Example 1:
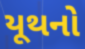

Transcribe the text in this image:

યૂથનો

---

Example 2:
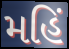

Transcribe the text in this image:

મહિં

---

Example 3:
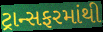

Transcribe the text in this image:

ટ્રાન્સફરમાંથી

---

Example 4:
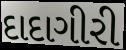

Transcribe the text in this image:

દાદાગીરી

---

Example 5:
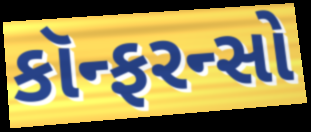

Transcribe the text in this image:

કૉન્ફરન્સો